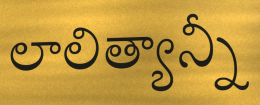
లాలిత్యాన్నీ